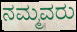
ನಮ್ಮವರು